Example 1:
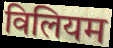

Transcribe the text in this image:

विलियम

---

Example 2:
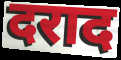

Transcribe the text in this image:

दराद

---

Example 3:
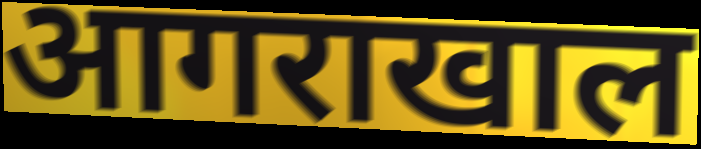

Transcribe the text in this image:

आगराखाल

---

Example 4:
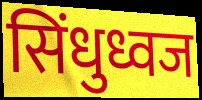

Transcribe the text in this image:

सिंधुध्वज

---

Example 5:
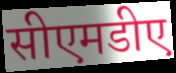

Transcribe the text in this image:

सीएमडीए